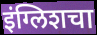
इंग्लिशचा